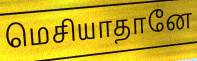
மெசியாதானே